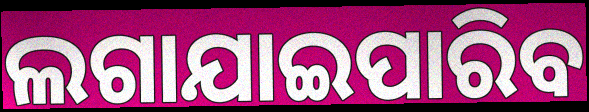
ଲଗାଯାଇପାରିବ